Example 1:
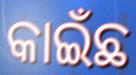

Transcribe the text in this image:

କାଇଁଛ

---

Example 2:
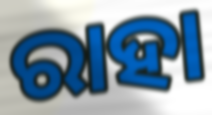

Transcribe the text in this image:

ରାହା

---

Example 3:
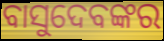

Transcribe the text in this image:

ବାସୁଦେବଙ୍କର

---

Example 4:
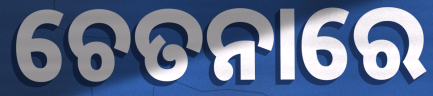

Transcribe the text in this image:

ଚେତନାରେ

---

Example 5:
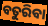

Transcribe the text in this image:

ବତୁରିବା